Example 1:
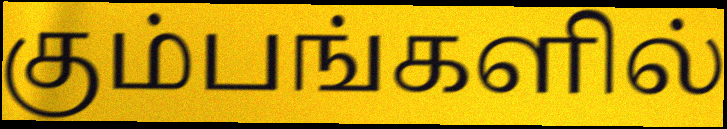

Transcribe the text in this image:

கும்பங்களில்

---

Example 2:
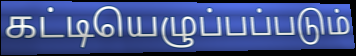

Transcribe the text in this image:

கட்டியெழுப்பப்படும்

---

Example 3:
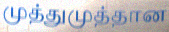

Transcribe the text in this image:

முத்துமுத்தான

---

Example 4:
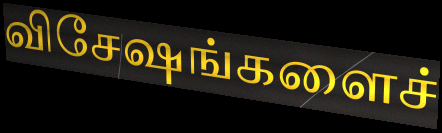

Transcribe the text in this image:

விசேஷங்களைச்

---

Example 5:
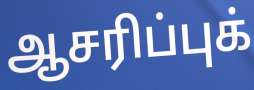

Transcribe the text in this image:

ஆசரிப்புக்